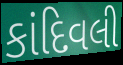
કાંદિવલી